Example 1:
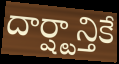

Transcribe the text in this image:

దార్ష్టాన్తికే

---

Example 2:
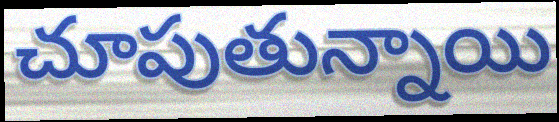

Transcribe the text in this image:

చూపుతున్నాయి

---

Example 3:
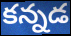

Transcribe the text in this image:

కన్నడ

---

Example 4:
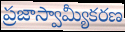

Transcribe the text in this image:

ప్రజాస్వామ్యీకరణ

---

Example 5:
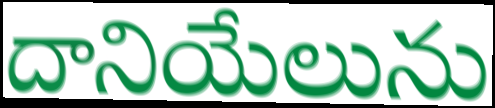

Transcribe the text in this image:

దానియేలును